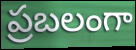
ప్రబలంగా